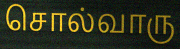
சொல்வாரு